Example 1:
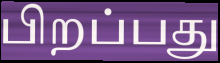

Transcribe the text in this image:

பிறப்பது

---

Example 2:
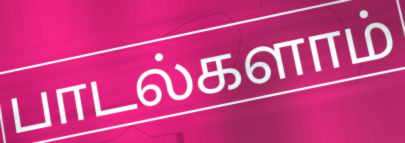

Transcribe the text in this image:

பாடல்களாம்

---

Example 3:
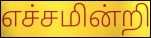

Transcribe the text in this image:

எச்சமின்றி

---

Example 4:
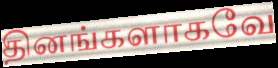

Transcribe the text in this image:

தினங்களாகவே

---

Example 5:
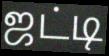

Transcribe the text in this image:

ஜட்டி